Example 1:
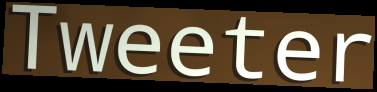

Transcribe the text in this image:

Tweeter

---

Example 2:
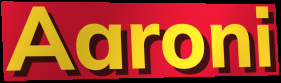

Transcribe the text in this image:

Aaroni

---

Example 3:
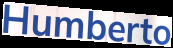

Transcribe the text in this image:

Humberto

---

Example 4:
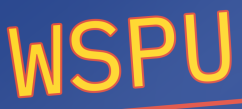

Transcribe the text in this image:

WSPU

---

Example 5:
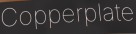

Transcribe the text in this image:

Copperplate